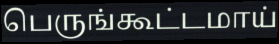
பெருங்கூட்டமாய்